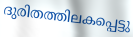
ദുരിതത്തിലകപ്പെട്ടു